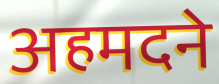
अहमदने